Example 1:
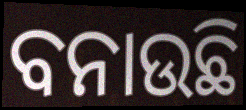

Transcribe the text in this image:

ବନାଉଛି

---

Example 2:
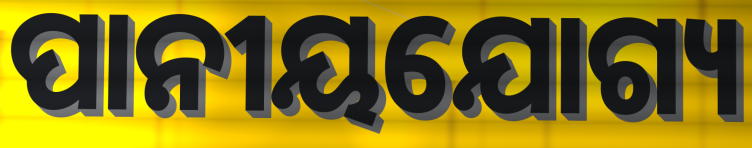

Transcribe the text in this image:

ପାନୀୟଯୋଗ୍ୟ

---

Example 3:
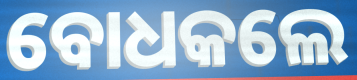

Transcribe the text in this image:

ବୋଧକଲେ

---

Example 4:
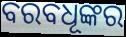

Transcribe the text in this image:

ବରବଧୂଙ୍କର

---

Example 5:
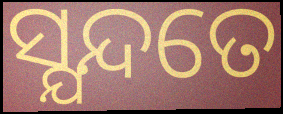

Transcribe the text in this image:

ସ୍ଯନ୍ଦତେ